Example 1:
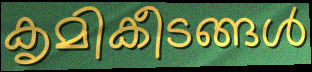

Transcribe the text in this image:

കൃമികീടങ്ങൾ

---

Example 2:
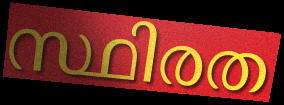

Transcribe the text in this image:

സ്ഥിരത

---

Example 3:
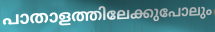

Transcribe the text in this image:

പാതാളത്തിലേക്കുപോലും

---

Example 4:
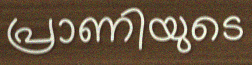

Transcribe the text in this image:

പ്രാണിയുടെ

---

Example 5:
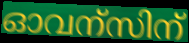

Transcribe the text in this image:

ഓവന്സിന്